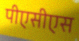
पीएसीएस